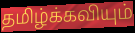
தமிழ்க்கவியும்